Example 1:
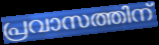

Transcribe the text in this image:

പ്രവാസത്തിന്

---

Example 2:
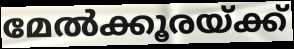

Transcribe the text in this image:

മേൽക്കൂരയ്ക്ക്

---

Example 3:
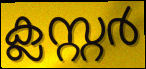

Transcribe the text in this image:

ക്ലസ്റ്റർ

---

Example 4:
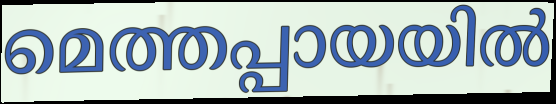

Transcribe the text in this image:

മെത്തപ്പായയിൽ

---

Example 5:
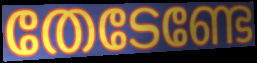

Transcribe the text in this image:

തേടേണ്ടേ